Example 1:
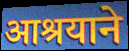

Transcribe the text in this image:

आश्रयाने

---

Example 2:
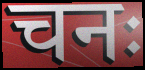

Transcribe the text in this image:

चनः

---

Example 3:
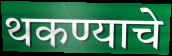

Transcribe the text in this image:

थकण्याचे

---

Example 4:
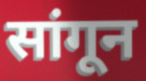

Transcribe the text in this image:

सांगून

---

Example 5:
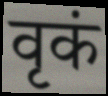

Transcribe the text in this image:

वृकं